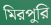
মিরপুরি